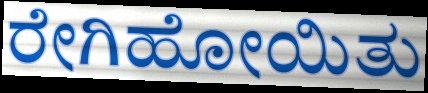
ರೇಗಿಹೋಯಿತು